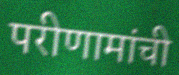
परीणामांची